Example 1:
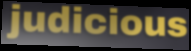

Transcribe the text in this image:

judicious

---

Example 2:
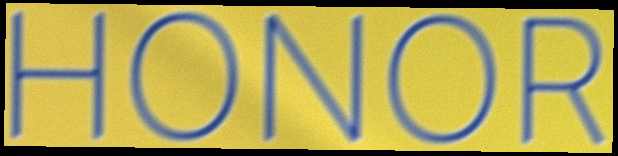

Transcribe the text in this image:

HONOR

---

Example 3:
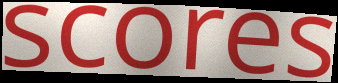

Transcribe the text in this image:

scores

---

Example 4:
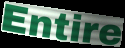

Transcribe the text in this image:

Entire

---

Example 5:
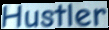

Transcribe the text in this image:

Hustler